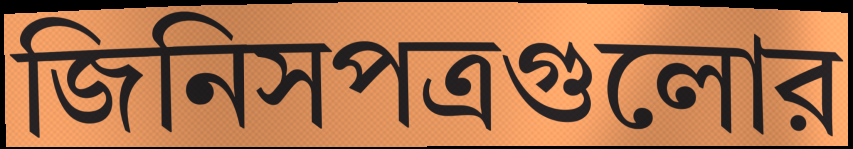
জিনিসপত্রগুলোর